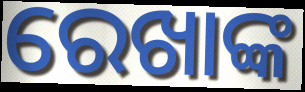
ରେଖାଙ୍କ